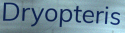
Dryopteris